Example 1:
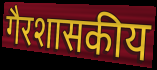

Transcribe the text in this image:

गैरशासकीय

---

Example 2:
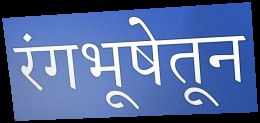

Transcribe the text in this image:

रंगभूषेतून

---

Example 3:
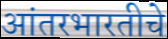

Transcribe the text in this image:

आंतरभारतीचे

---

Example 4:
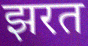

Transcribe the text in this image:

झरत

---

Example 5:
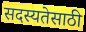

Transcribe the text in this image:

सदस्यतेसाठी